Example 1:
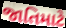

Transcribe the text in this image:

જાતિમાટે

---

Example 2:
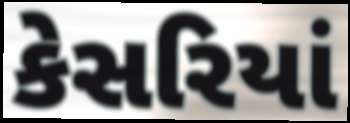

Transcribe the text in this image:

કેસરિયાં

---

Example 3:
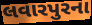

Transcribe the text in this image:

લવારપુરના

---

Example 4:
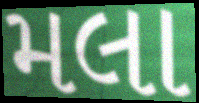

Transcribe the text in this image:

મલા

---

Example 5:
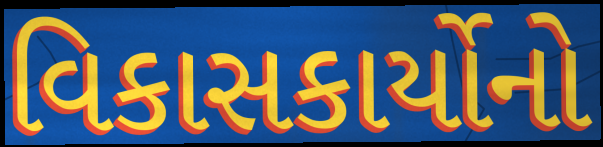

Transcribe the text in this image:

વિકાસકાર્યોનો